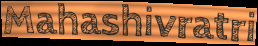
Mahashivratri